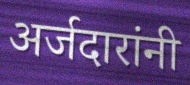
अर्जदारांनी